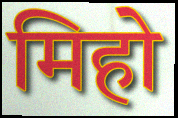
मिहो